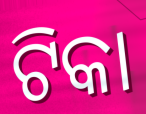
ଟିକା